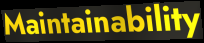
Maintainability